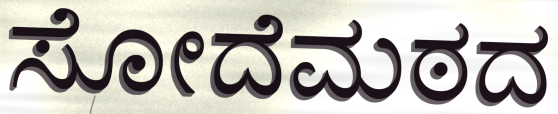
ಸೋದೆಮಠದ